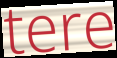
tere